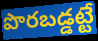
పొరబడ్డట్టే